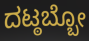
ದಟ್ಠಬ್ಬೋ